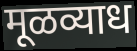
मूळव्याध